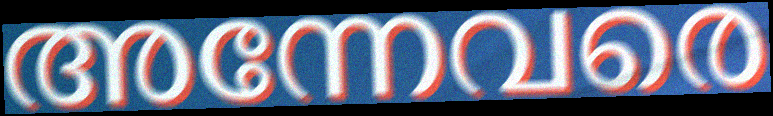
അന്നേവരെ